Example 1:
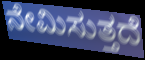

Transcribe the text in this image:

ನೇಮಿಸುತ್ತದೆ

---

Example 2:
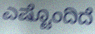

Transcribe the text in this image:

ಎಷ್ಟೊಂದಿದೆ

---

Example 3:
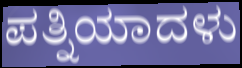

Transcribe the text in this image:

ಪತ್ನಿಯಾದಳು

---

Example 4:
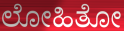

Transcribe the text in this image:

ಲೋಹಿತೋ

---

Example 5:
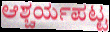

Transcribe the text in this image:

ಆಶ್ಚರ್ಯಪಟ್ಟ